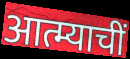
आत्म्याचीं